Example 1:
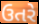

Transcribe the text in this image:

ઉતરે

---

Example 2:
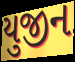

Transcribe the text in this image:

યુજીન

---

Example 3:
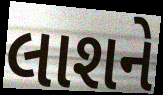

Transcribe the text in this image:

લાશને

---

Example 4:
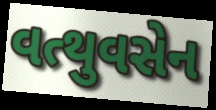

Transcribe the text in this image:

વત્થુવસેન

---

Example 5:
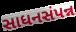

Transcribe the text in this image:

સાધનસંપન્ન